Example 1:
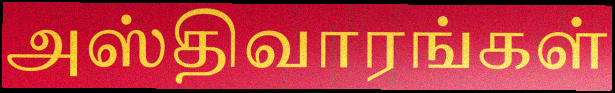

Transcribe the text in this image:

அஸ்திவாரங்கள்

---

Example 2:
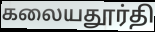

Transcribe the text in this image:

கலையதூர்தி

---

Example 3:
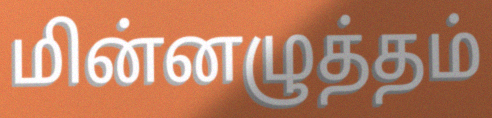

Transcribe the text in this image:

மின்னழுத்தம்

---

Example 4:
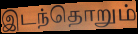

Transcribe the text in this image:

இடந்தொறும்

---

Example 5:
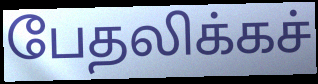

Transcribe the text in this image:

பேதலிக்கச்